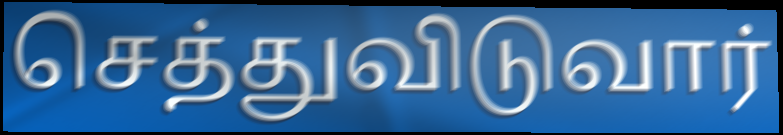
செத்துவிடுவார்